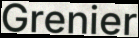
Grenier